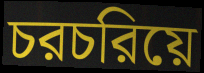
চরচরিয়ে